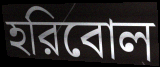
হরিবোল